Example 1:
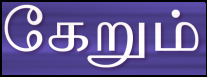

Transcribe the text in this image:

கேறும்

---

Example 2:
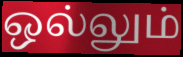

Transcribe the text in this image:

ஒல்லும்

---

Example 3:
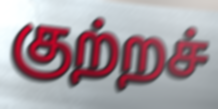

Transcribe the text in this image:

குற்றச்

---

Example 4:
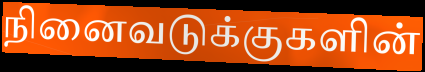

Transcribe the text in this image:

நினைவடுக்குகளின்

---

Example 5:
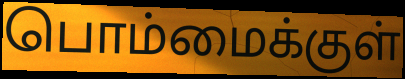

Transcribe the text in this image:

பொம்மைக்குள்